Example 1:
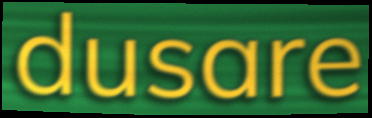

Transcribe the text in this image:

dusare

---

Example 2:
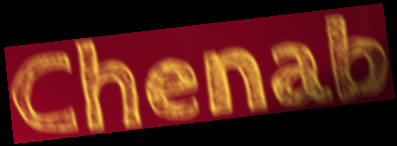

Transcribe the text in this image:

Chenab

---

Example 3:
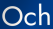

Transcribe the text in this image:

Och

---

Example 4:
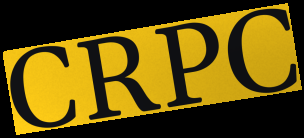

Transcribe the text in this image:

CRPC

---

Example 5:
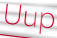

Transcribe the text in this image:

Uup